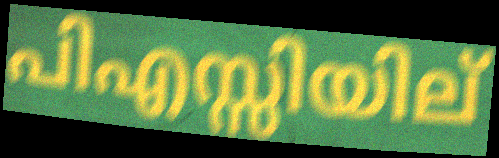
പിഎസ്സിയില്